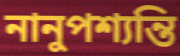
নানুপশ্যন্তি